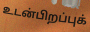
உடன்பிறப்புக்